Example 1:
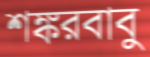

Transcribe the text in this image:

শঙ্করবাবু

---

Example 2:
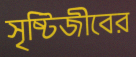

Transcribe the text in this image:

সৃষ্টিজীবের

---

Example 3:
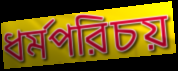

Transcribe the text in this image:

ধর্মপরিচয়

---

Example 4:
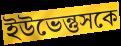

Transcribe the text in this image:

ইউভেন্তুসকে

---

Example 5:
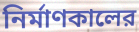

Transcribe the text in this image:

নির্মাণকালের